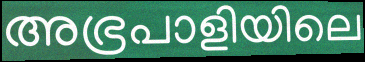
അഭ്രപാളിയിലെ